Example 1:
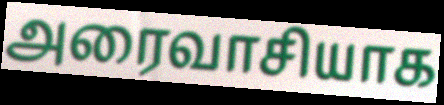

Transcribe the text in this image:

அரைவாசியாக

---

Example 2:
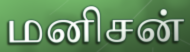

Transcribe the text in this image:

மனிசன்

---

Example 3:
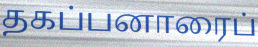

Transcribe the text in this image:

தகப்பனாரைப்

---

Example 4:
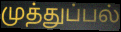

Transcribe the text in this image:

முத்துப்பல்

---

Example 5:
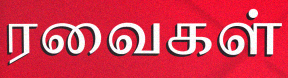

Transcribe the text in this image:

ரவைகள்